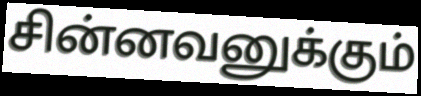
சின்னவனுக்கும்